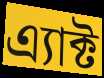
এ্যাক্ট